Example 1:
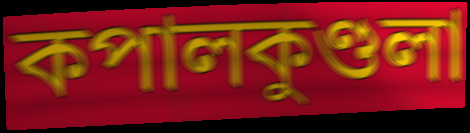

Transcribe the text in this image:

কপালকুণ্ডলা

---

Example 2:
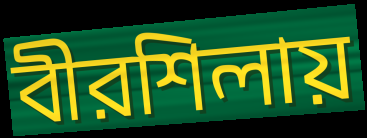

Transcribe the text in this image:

বীরশিলায়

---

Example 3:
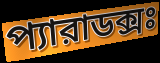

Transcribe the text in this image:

প্যারাডক্সঃ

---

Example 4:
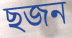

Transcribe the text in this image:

ছজন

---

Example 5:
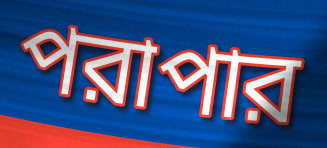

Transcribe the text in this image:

পরাপার